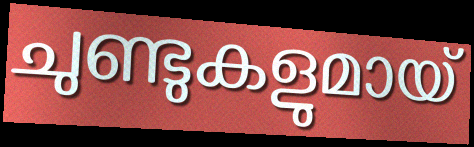
ചുണ്ടുകളുമായ്